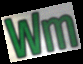
Wm